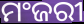
ମଂଜରୀ